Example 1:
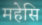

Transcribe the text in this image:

महेसि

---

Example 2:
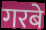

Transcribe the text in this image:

गरबे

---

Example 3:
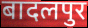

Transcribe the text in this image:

बादलपुर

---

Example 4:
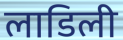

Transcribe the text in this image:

लाडिली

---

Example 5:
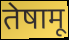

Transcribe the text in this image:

तेषामू